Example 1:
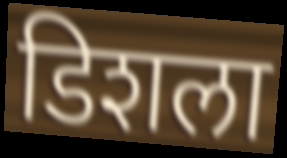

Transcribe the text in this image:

डिशला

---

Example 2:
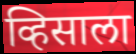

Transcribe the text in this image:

व्हिसाला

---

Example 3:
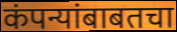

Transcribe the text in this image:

कंपन्यांबाबतचा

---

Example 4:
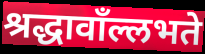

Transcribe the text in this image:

श्रद्धावाँल्लभते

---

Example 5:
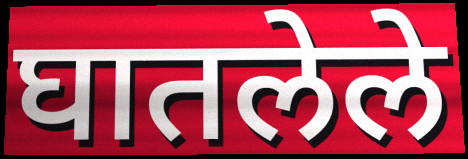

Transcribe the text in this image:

घातलेले